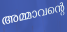
അമ്മാവന്റെ